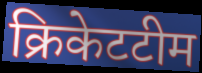
क्रिकेटटीम